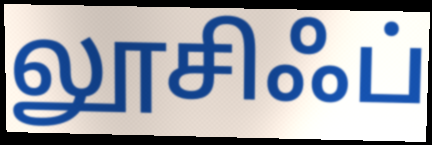
லூசிஃப்